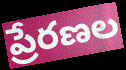
ప్రేరణల